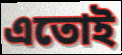
এতোই